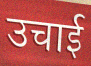
उचाई